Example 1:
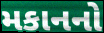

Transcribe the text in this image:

મકાનનો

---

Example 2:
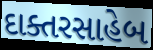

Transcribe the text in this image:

દાક્તરસાહેબ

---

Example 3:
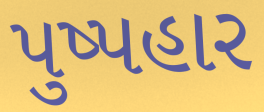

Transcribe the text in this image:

પુષ્પહાર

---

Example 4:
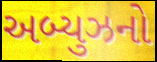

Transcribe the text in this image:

અબ્યુઝનો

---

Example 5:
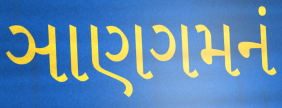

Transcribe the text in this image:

ઞાણગમનં